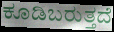
ಕೂಡಿಬರುತ್ತದೆ